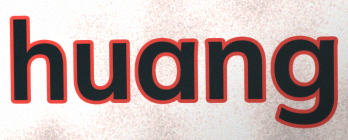
huang